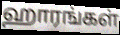
ஹாரங்கள்